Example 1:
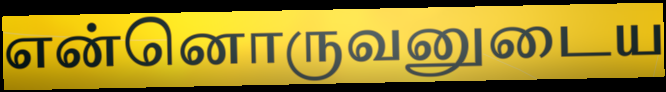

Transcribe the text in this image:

என்னொருவனுடைய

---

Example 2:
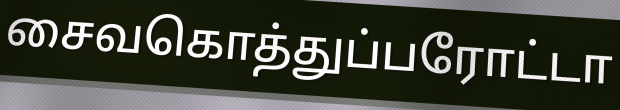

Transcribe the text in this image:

சைவகொத்துப்பரோட்டா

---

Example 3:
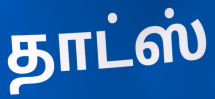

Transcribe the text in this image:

தாட்ஸ்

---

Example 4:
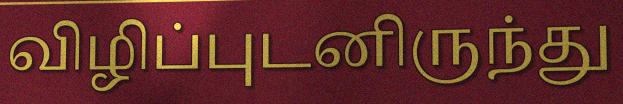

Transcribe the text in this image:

விழிப்புடனிருந்து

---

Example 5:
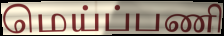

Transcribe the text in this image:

மெய்ப்பணி